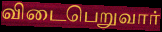
விடைபெறுவார்